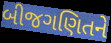
બીજગણિતને